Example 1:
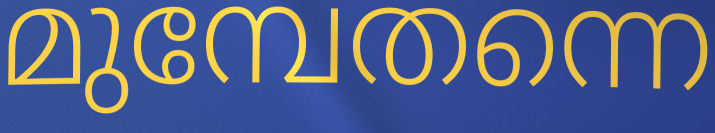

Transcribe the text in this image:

മുമ്പേതന്നെ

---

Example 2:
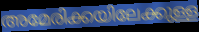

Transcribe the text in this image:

അമേരിക്കയിലേക്കുള്ള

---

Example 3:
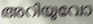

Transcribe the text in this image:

അറിയുവോ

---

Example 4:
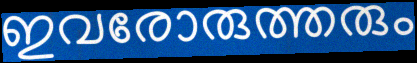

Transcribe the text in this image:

ഇവരോരുത്തരും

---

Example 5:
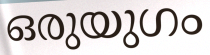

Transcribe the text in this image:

ഒരുയുഗം